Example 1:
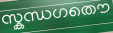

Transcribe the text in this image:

സ്കന്ധഗതൌ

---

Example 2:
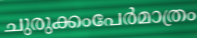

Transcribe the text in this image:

ചുരുക്കംപേർമാത്രം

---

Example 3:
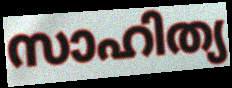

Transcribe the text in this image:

സാഹിത്യ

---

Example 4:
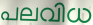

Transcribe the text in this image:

പലവിധ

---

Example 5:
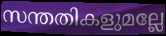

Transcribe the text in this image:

സന്തതികളുമല്ലേ